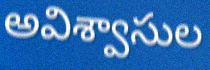
అవిశ్వాసుల